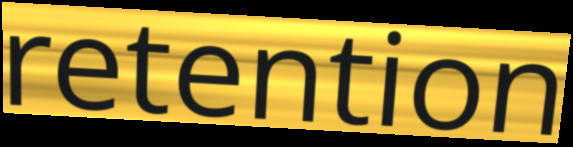
retention